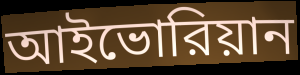
আইভোরিয়ান